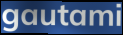
gautami